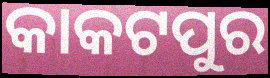
କାକଟପୁର